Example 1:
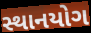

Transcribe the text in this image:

સ્થાનયોગ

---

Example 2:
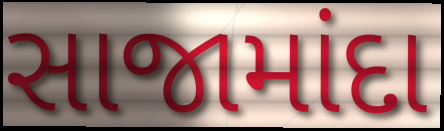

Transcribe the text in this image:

સાજામાંદા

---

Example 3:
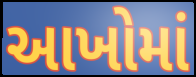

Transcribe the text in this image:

આખોમાં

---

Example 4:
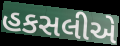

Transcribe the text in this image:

હકસલીએ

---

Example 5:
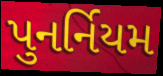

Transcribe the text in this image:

પુનર્નિયમ